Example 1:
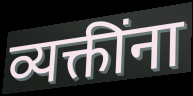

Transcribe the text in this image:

व्यक्तींना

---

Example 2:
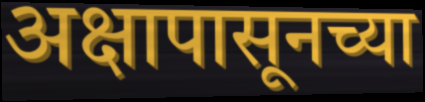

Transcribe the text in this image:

अक्षापासूनच्या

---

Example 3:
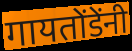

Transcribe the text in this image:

गायतोंडेंनी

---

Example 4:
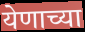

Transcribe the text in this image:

येणाच्या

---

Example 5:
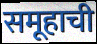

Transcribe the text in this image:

समूहाची